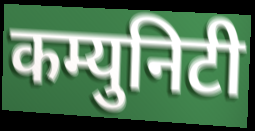
कम्युनिटी